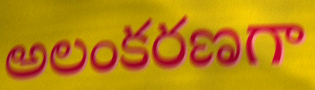
అలంకరణగా